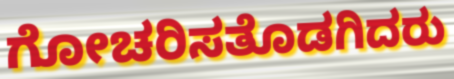
ಗೋಚರಿಸತೊಡಗಿದರು